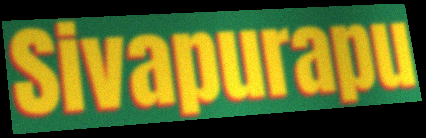
Sivapurapu